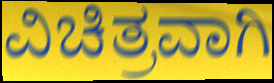
ವಿಚಿತ್ರವಾಗಿ